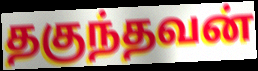
தகுந்தவன்